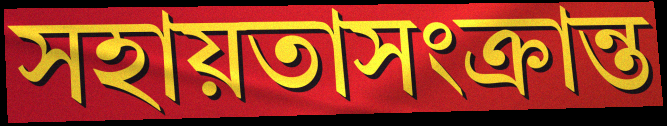
সহায়তাসংক্রান্ত